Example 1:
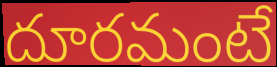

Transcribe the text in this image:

దూరమంటే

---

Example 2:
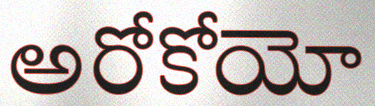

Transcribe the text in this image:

అరోకోయో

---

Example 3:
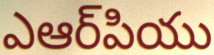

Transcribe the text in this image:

ఎఆర్‌పియు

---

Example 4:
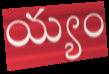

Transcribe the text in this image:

య్యం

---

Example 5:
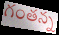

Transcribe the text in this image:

గంతన్న